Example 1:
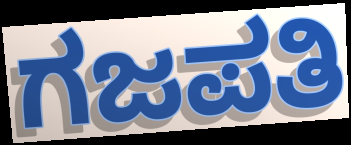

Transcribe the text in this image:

ಗಜಪತಿ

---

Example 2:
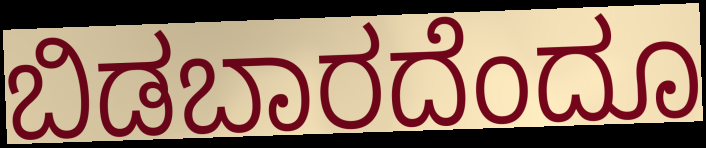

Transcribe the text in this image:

ಬಿಡಬಾರದೆಂದೂ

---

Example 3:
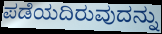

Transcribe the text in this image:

ಪಡೆಯದಿರುವುದನ್ನು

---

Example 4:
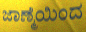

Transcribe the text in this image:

ಜಾಣ್ಮೆಯಿಂದ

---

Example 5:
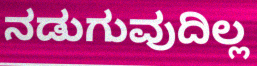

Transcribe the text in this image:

ನಡುಗುವುದಿಲ್ಲ